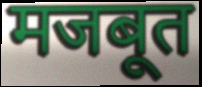
मजबूत